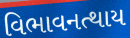
વિભાવનત્થાય